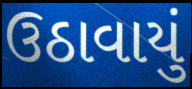
ઉઠાવાયું